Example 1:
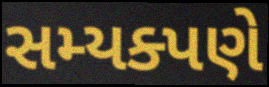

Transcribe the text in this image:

સમ્યક્પણે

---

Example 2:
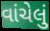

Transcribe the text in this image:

વાંચેલું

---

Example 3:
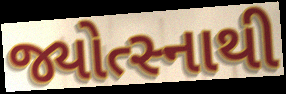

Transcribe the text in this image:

જ્યોત્સ્નાથી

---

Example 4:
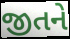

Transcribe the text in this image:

જીતને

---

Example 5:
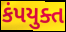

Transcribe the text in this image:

કંપયુક્ત